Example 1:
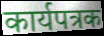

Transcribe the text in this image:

कार्यपत्रक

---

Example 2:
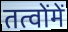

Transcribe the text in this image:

तत्वोंमें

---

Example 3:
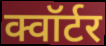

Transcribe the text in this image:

क्वॉर्टर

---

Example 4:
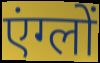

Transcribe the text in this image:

एंग्लों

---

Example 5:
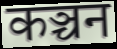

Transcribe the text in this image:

कञ्चन